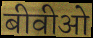
बीवीओ